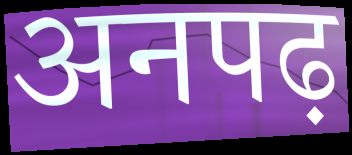
अनपढ़